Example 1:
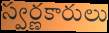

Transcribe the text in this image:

స్వర్ణకారులు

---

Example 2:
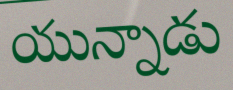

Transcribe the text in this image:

యున్నాడు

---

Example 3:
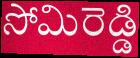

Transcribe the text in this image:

సోమిరెడ్డి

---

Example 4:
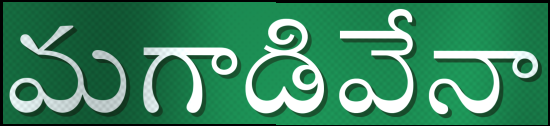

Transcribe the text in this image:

మగాడివేనా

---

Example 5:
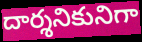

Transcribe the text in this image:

దార్శనికునిగా